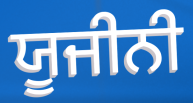
ਯੂਜੀਨੀ